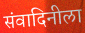
संवादिनीला